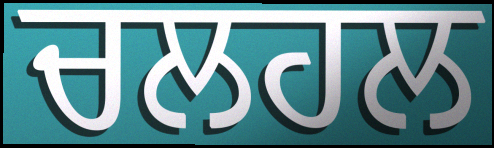
ਚਲਹਲ